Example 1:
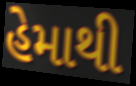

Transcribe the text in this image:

હેમાથી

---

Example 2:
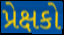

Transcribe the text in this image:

પ્રેક્ષકો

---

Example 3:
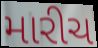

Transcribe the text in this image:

મારીચ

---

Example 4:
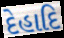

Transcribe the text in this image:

દેહાદિ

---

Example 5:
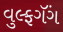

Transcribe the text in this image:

વુલ્ફગૅંગ